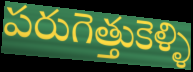
పరుగెత్తుకెళ్ళి